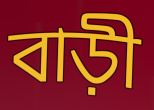
বাড়ী